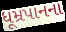
ધૂમ્રપાનના